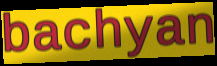
bachyan